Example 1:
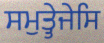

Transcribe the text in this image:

ਸਮੁਤ੍ਤੇਜੇਸਿ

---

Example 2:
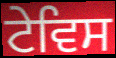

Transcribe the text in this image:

ਟੇਵਿਸ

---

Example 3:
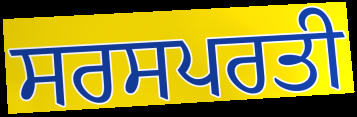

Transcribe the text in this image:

ਸਰਸਪਰਤੀ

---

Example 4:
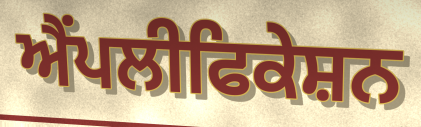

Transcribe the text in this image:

ਐਂਪਲੀਫਿਕੇਸ਼ਨ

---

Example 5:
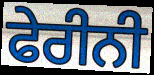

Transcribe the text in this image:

ਫੇਰੀਨੀ